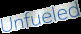
Unfueled